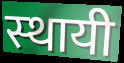
स्‍थायी